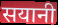
सयानी